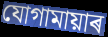
যোগামায়াৰ